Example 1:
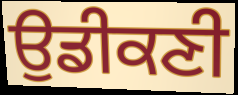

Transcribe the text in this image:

ਉਡੀਕਣੀ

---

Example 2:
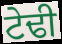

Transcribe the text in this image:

ਟੇਢੀ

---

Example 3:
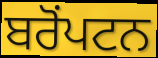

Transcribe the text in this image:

ਬਰੋਂਪਟਨ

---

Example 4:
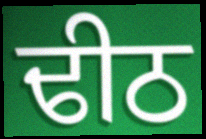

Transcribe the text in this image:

ਢੀਠ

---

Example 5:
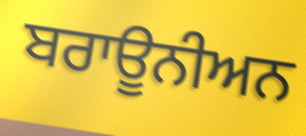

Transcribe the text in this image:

ਬਰਾਊਨੀਅਨ